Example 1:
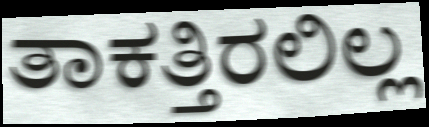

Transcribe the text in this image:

ತಾಕತ್ತಿರಲಿಲ್ಲ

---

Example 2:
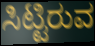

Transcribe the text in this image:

ಸಿಟ್ಟಿರುವ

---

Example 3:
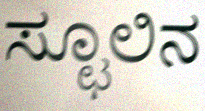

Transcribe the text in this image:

ಸ್ಟೂಲಿನ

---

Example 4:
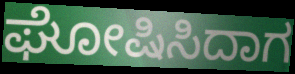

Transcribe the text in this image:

ಘೋಷಿಸಿದಾಗ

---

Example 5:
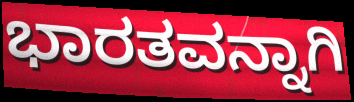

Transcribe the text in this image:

ಭಾರತವನ್ನಾಗಿ